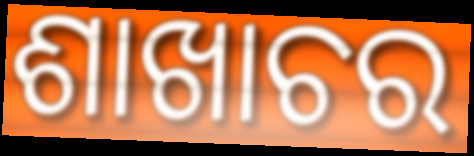
ଶାଖାଚର